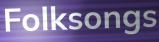
Folksongs